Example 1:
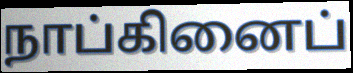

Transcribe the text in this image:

நாப்கினைப்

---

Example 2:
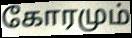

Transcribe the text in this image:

கோரமும்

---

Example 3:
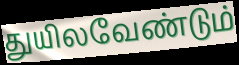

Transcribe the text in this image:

துயிலவேண்டும்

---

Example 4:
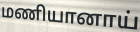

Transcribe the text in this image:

மணியானாய்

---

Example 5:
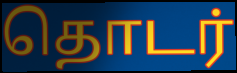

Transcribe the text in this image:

தொடர்